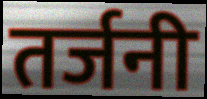
तर्जनी